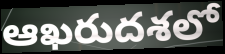
ఆఖరుదశలో